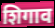
शिगाव